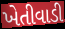
ખેતીવાડી